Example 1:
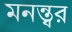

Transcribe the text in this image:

মনন্ত্বর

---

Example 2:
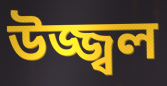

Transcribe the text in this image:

উজ্জ্বল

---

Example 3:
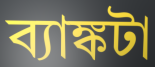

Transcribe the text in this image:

ব্যাঙ্কটা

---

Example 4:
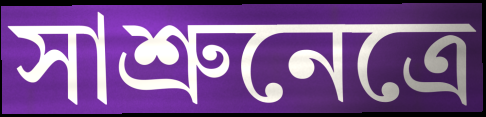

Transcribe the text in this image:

সাশ্রুনেত্রে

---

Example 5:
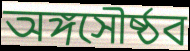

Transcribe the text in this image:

অঙ্গসৌষ্ঠব